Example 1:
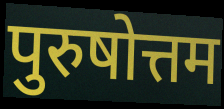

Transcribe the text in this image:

पुरुषोत्तम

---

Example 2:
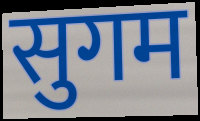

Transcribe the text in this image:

सुगम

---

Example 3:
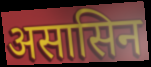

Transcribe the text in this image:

असासिन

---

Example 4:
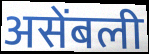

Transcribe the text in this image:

असेंबली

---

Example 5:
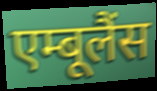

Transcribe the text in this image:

एम्बूलैंस